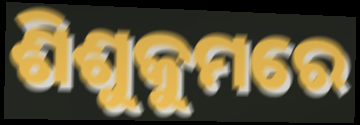
ଶିଶୁକୁମରେ